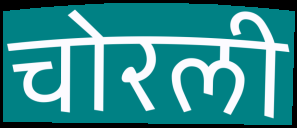
चोरली